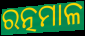
ରତ୍ନମାଳ